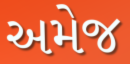
અમેજ